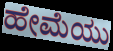
ಹೇಮೆಯು